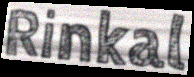
Rinkal